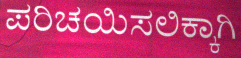
ಪರಿಚಯಿಸಲಿಕ್ಕಾಗಿ